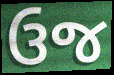
ઉજ